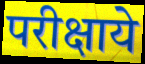
परीक्षाये